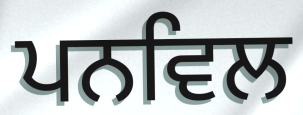
ਪਨਵਿਲ